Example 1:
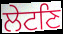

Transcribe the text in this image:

ਲੇਟਣਿ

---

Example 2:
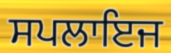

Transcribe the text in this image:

ਸਪਲਾਇਜ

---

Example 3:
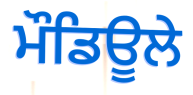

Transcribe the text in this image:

ਮੌਡਿਊਲੇ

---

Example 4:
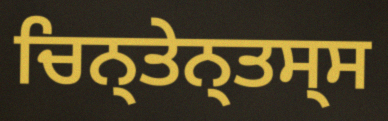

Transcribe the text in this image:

ਚਿਨ੍ਤੇਨ੍ਤਸ੍ਸ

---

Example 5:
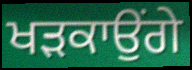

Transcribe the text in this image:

ਖੜਕਾਉਂਗੇ